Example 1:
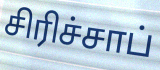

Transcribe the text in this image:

சிரிச்சாப்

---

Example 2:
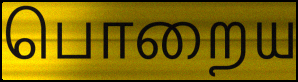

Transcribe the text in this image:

பொறைய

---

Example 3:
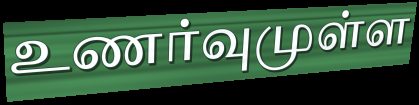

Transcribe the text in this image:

உணர்வுமுள்ள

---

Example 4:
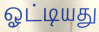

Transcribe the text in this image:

ஓட்டியது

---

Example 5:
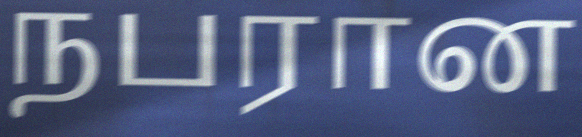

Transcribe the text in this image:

நபரான